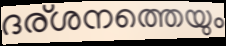
ദര്ശനത്തെയും